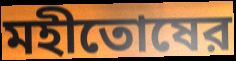
মহীতোষের